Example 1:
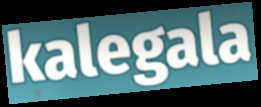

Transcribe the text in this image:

kalegala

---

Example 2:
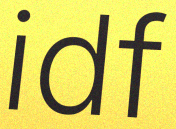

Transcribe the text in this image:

idf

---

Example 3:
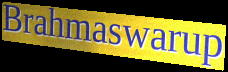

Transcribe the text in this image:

Brahmaswarup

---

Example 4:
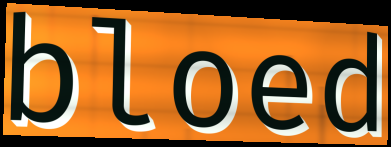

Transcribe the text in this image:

bloed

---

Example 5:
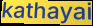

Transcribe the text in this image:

kathayai